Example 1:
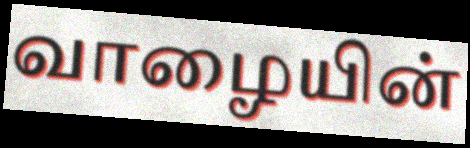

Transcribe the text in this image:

வாழையின்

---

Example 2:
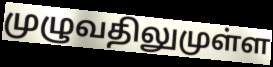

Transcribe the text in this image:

முழுவதிலுமுள்ள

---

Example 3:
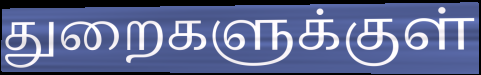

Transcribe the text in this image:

துறைகளுக்குள்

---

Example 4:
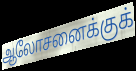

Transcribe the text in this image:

ஆலோசனைக்குக்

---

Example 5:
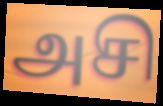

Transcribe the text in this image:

அசி